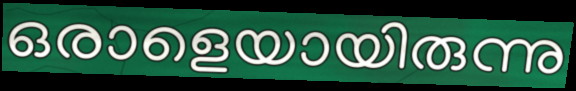
ഒരാളെയായിരുന്നു